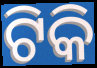
ଟିକି